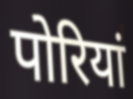
पोरियां